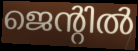
ജെന്റിൽ